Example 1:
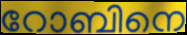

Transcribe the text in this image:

റോബിനെ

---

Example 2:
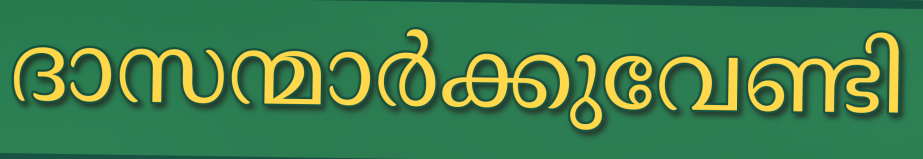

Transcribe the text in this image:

ദാസന്മാർക്കുവേണ്ടി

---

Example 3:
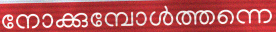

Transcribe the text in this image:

നോക്കുമ്പോൾത്തന്നെ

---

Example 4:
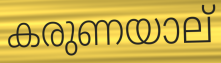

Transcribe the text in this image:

കരുണയാല്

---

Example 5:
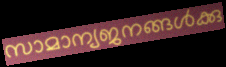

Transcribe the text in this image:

സാമാന്യജനങ്ങൾക്കു